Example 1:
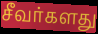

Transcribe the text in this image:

சீவர்களது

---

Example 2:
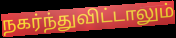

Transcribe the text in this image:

நகர்ந்துவிட்டாலும்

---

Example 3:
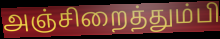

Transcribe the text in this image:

அஞ்சிறைத்தும்பி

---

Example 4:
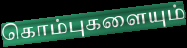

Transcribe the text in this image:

கொம்புகளையும்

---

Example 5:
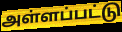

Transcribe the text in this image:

அள்ளப்பட்டு